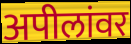
अपीलांवर